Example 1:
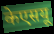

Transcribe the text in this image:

केएसयू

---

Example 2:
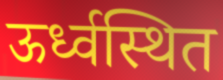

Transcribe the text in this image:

ऊर्ध्वस्थित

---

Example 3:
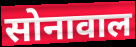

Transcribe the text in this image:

सोनावाल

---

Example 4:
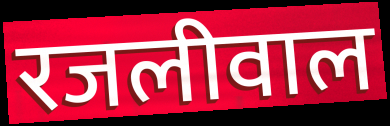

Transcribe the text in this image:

रजलीवाल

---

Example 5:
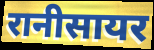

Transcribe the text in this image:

रानीसायर